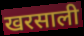
खरसाली